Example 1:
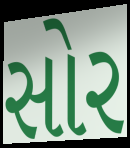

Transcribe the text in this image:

સોર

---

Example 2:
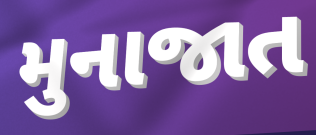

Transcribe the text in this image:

મુનાજાત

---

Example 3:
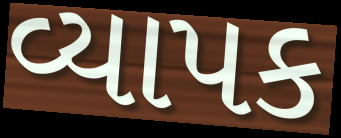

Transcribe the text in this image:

વ્યાપક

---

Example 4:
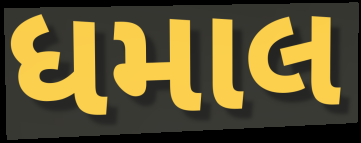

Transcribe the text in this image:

ધમાલ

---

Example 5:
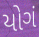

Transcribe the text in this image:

યોગં